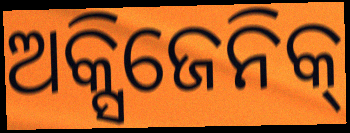
ଅକ୍ସିଜେନିକ୍